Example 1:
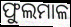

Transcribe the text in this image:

ଫୁଲମାଳ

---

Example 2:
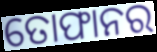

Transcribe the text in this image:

ତୋଫାନର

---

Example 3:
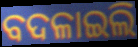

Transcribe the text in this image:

ବଦଳାଇଲି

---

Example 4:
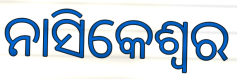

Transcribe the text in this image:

ନାସିକେଶ୍ୱର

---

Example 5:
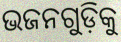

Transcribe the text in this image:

ଭଜନଗୁଡ଼ିକୁ